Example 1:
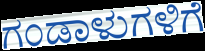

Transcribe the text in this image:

ಗಂಡಾಳುಗಳಿಗೆ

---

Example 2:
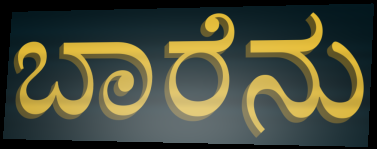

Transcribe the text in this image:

ಬಾರೆನು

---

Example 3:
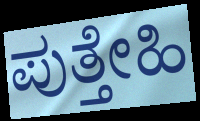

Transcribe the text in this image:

ಪುತ್ತೇಹಿ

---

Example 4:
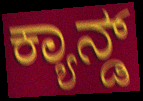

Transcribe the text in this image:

ಕ್ಯಾನ್ಡ್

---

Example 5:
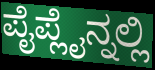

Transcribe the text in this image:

ಪೈಪ್ಲೈನ್ನಲ್ಲಿ